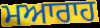
ਮਆਰਾਹ